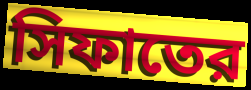
সিফাতের